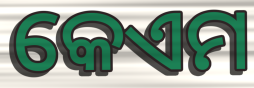
କେଏମ